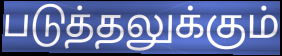
படுத்தலுக்கும்